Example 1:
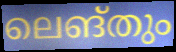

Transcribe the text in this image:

ലെങ്തും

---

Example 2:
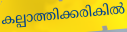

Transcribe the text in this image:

കല്പാത്തിക്കരികിൽ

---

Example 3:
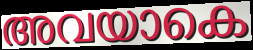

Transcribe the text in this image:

അവയാകെ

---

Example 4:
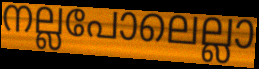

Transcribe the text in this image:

നല്ലപോലെല്ലാ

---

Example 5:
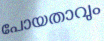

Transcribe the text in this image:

പോയതാവും